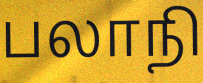
பலாநி